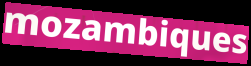
mozambiques